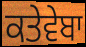
ਕਤੇਵੇਬਾ